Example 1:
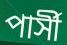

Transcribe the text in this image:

পার্সী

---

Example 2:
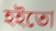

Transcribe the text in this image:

হইতো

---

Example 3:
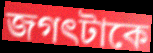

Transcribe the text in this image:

জগৎটাকে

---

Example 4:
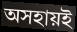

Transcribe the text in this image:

অসহায়ই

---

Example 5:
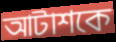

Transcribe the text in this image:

আটাশকে